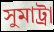
সুমাট্ৰা